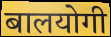
बालयोगी